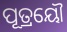
ପୂତ୍ରୟୌ